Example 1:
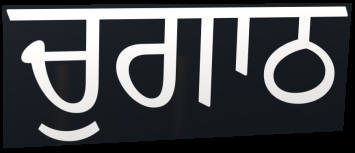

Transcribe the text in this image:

ਚੁਗਾਠ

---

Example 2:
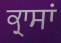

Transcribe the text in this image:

ਕ੍ਰਾਸਾਂ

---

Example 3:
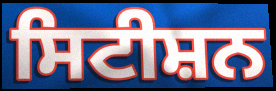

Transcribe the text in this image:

ਸਿਟੀਸ਼ਨ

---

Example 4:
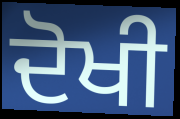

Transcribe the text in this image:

ਦੋਖੀ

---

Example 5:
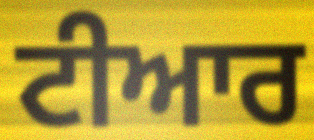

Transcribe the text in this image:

ਟੀਆਰ